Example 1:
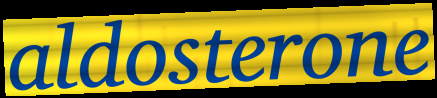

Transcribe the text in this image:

aldosterone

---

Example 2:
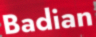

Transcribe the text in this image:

Badian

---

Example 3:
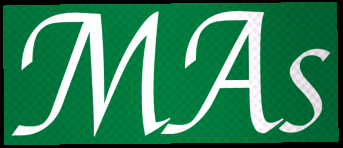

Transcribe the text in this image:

MAs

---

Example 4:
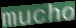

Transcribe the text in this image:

mucho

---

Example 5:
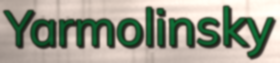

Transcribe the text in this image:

Yarmolinsky